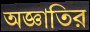
অজ্ঞাতির